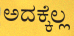
ಅದಕ್ಕೆಲ್ಲ